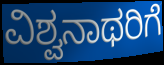
ವಿಶ್ವನಾಥರಿಗೆ